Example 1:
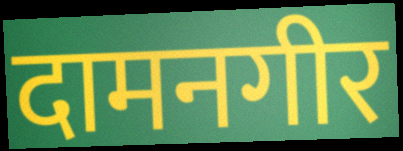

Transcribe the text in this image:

दामनगीर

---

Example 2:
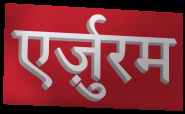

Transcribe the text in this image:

एर्ज़ुरम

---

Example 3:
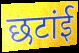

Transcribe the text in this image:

छटांई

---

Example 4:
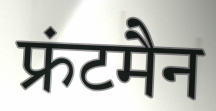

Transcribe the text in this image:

फ्रंटमैन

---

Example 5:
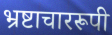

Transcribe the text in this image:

भ्रष्टाचाररूपी